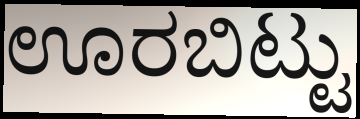
ಊರಬಿಟ್ಟು